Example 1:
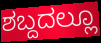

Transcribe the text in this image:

ಶಬ್ದದಲ್ಲೂ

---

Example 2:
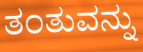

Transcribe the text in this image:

ತಂತುವನ್ನು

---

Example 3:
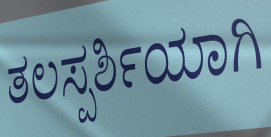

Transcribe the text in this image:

ತಲಸ್ಪರ್ಶಿಯಾಗಿ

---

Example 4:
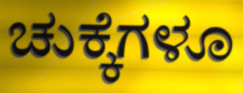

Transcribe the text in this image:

ಚುಕ್ಕೆಗಳೂ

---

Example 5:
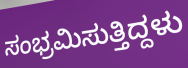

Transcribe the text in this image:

ಸಂಭ್ರಮಿಸುತ್ತಿದ್ದಳು